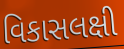
વિકાસલક્ષી